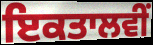
ਇਕਤਾਲਵੀਂ